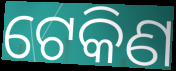
ଟେକିଣ